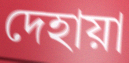
দেহায়া